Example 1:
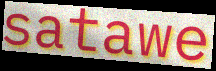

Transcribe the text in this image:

satawe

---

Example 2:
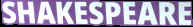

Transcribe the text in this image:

SHAKESPEARE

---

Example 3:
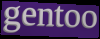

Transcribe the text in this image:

gentoo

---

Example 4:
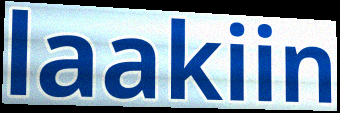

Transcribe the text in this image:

laakiin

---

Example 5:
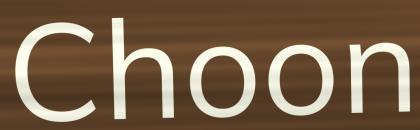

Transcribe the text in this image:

Choon